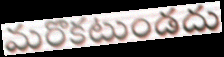
మరొకటుండదు